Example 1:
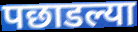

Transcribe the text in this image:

पछाडल्या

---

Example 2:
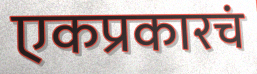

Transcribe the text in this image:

एकप्रकारचं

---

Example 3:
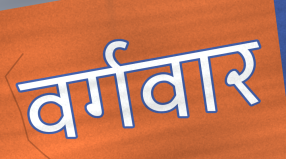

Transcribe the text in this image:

वर्गवार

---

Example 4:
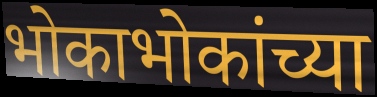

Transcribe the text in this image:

भोकाभोकांच्या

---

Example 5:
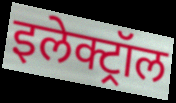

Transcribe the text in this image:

इलेक्ट्रॉल